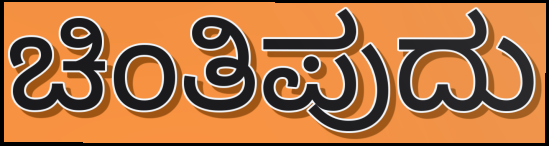
ಚಿಂತಿಪುದು